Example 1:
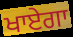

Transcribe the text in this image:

ਖਾਏਗਾ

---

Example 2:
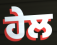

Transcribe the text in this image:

ਹੇਲ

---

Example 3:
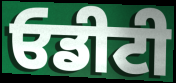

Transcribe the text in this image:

ਓਡੀਟੀ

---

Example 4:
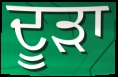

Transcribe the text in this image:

ਦੂੜਾ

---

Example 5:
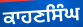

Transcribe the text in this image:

ਕਾਹਣਸਿੰਘ